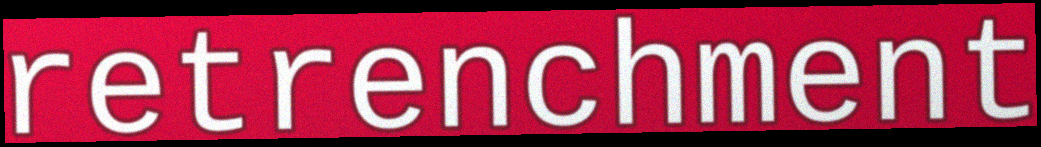
retrenchment